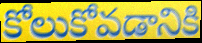
కోలుకోవడానికి